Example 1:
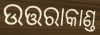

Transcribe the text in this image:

ଉତ୍ତରାକାଣ୍ଡ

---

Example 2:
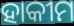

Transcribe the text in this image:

ହାକୀମ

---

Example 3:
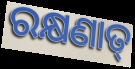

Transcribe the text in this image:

ରକ୍ଷଣାତ୍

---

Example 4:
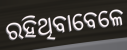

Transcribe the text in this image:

ରହିଥିବାବେଳେ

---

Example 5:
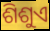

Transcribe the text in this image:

ଶିଶୁଏ